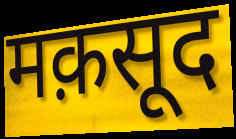
मक़सूद